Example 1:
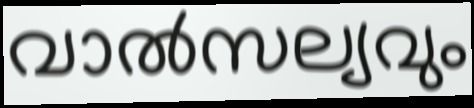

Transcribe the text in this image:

വാൽസല്യവും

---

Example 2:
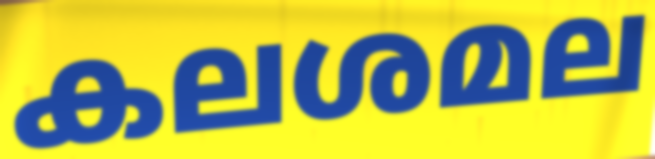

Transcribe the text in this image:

കലശമല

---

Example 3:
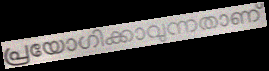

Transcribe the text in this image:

പ്രയോഗിക്കാവുന്നതാണ്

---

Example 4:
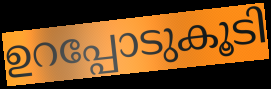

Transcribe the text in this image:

ഉറപ്പോടുകൂടി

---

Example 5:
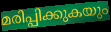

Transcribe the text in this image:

മരിപ്പിക്കുകയും